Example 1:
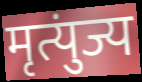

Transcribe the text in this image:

मृत्युंज्य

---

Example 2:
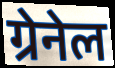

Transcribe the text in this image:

ग्रेनेल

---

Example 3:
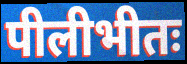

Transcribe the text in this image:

पीलीभीतः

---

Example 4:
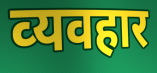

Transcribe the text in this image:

व्‍यवहार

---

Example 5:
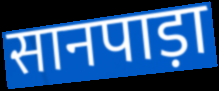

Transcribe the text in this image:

सानपाड़ा